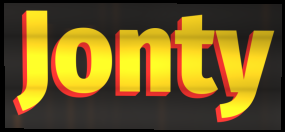
Jonty